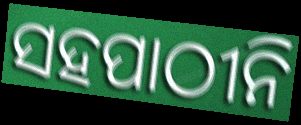
ସହପାଠୀନି